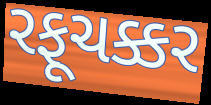
રફૂચક્કર